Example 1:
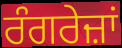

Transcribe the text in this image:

ਰੰਗਰੇਜ਼ਾਂ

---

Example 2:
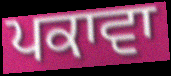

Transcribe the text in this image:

ਪਕਾਵਾ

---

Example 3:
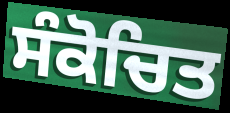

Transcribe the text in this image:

ਸੰਕੋਚਿਤ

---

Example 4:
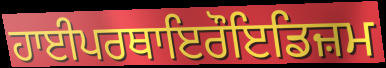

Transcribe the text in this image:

ਹਾਈਪਰਥਾਇਰੌਇਡਿਜ਼ਮ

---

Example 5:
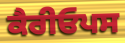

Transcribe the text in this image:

ਕੈਰੀਓਪਸ